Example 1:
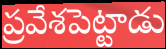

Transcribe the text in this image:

ప్రవేశపెట్టాడు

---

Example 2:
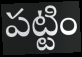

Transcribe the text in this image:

పట్టిం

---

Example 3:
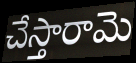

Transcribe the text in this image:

చేస్తారామె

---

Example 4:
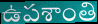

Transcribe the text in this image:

ఉపశాంతి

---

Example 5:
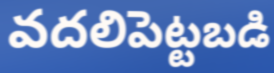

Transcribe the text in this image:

వదలిపెట్టబడి